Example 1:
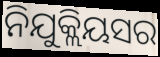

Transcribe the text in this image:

ନିଯୁକ୍ଲିୟସର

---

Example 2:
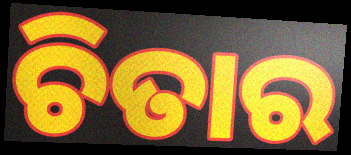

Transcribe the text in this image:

ଚିତାର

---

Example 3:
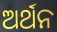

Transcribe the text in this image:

ଅର୍ଥନ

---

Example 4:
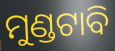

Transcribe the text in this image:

ମୁଣ୍ଡଟାବି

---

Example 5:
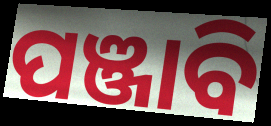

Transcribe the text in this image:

ପଞ୍ଜାବି